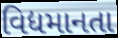
વિદ્યમાનતા